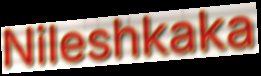
Nileshkaka